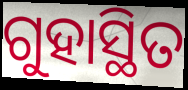
ଗୁହାସ୍ଥିତ